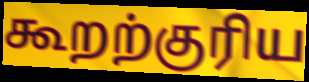
கூறற்குரிய